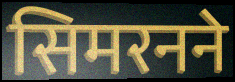
सिमरनने